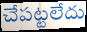
చేపట్టలేదు